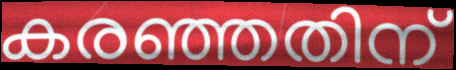
കരഞ്ഞതിന്